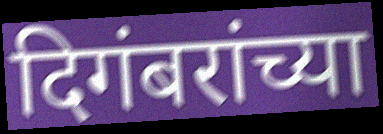
दिगंबरांच्या